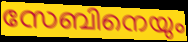
സേബിനെയും